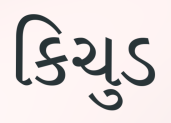
કિચુડ